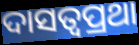
ଦାସତ୍ୱପ୍ରଥା